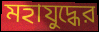
মহাযুদ্ধের